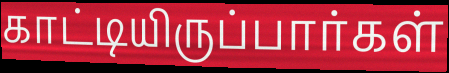
காட்டியிருப்பார்கள்